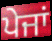
ਪੇਜਾਂ